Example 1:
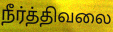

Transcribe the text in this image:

நீர்த்திவலை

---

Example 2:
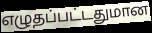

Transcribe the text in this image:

எழுதப்பட்டதுமான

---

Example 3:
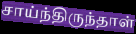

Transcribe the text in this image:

சாய்ந்திருந்தாள்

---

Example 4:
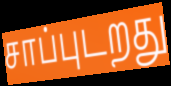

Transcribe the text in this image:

சாப்புடறது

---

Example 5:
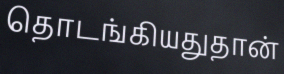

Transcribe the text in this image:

தொடங்கியதுதான்